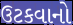
ઉટકવાનો